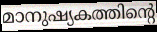
മാനുഷ്യകത്തിന്റെ